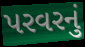
પરવરનું